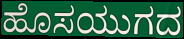
ಹೊಸಯುಗದ